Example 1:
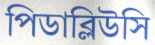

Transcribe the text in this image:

পিডাব্লিউসি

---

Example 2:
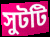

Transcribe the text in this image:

সুটটি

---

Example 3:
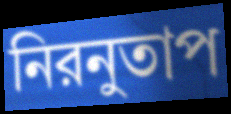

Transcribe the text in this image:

নিরনুতাপ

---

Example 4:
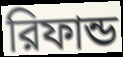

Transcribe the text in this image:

রিফান্ড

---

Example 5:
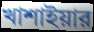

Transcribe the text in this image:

খাশাইয়ার